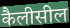
कैलीसील